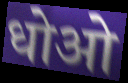
धोओ